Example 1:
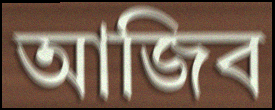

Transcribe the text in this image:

আজিব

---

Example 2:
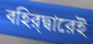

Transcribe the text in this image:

বহির্‌দ্বারেই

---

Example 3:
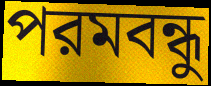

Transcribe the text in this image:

পরমবন্ধু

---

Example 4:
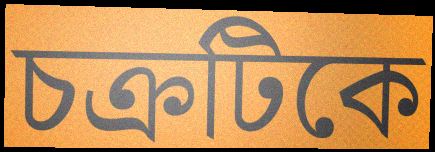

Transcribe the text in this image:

চক্রটিকে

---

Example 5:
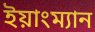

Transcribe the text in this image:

ইয়াংম্যান